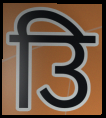
उि